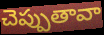
చెప్పుతావా